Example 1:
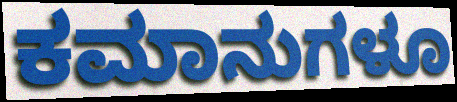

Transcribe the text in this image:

ಕಮಾನುಗಳೂ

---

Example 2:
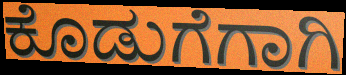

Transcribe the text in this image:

ಕೊಡುಗೆಗಾಗಿ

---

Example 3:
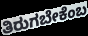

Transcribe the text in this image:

ತಿರುಗಬೇಕೆಂಬ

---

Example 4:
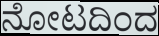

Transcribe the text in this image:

ನೋಟದಿಂದ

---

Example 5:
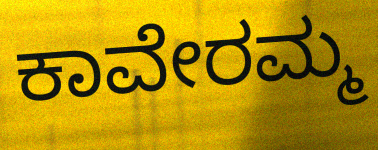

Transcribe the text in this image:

ಕಾವೇರಮ್ಮ